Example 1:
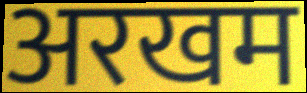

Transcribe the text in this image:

अरखम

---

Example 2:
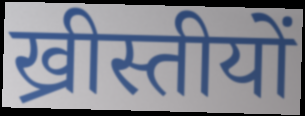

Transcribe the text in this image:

ख्रीस्तीयों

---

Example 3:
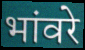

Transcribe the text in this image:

भांवरे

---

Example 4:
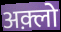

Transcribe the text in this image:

अक़्लो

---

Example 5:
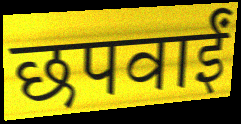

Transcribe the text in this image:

छपवाईं